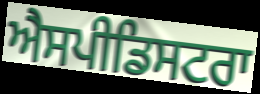
ਐਸਪੀਡਿਸਟਰਾ